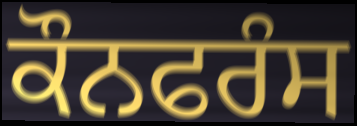
ਕੌਨਫਰੰਸ